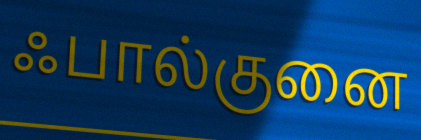
ஃபால்குனை